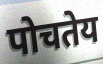
पोचतेय